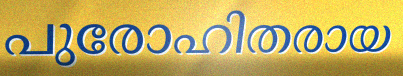
പുരോഹിതരായ